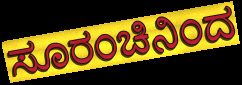
ಸೂರಂಚಿನಿಂದ